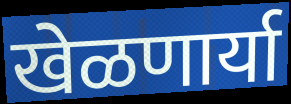
खेळणार्या